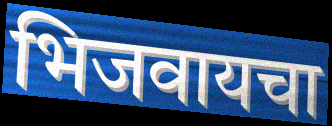
भिजवायचा